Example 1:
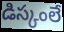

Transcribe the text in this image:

డిస్కంలే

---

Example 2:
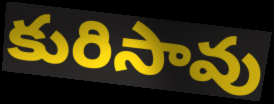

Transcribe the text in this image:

కురిసావు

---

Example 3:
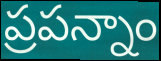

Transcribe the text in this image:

ప్రపన్నాం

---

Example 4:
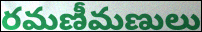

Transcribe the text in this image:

రమణీమణులు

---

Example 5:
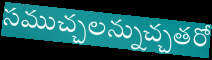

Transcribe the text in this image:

సముచ్చలన్నుచ్చతరో